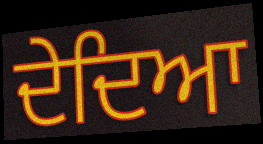
ਦੇਦਿਆ